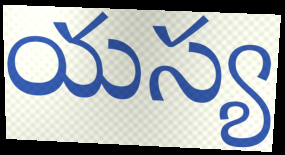
యస్య